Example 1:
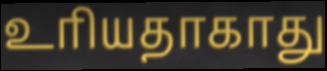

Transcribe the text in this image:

உரியதாகாது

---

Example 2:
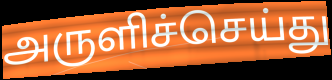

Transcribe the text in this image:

அருளிச்செய்து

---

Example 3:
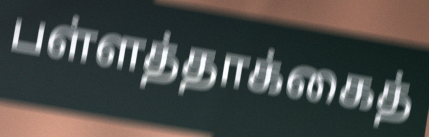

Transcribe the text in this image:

பள்ளத்தாக்கைத்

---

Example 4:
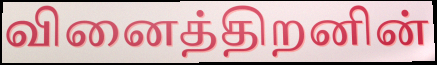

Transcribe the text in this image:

வினைத்திறனின்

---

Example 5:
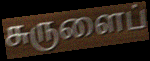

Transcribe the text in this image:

சுருளைப்